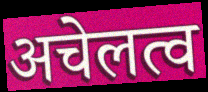
अचेलत्व